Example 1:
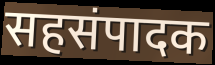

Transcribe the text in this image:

सहसंपादक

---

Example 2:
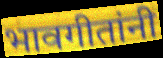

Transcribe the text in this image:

भावगीतांनी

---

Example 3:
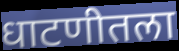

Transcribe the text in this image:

धाटणीतला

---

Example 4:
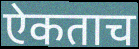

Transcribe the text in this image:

ऐकताच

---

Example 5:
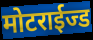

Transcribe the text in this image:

मोटराईज्ड